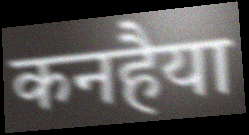
कनहैया